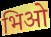
भिओ